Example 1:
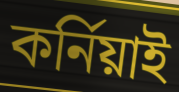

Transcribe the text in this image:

কর্নিয়াই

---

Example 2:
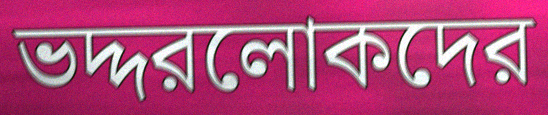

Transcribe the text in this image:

ভদ্দরলোকদের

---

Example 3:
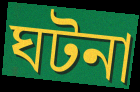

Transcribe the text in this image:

ঘটনা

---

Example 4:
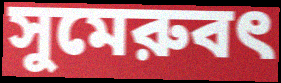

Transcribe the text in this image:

সুমেরুবৎ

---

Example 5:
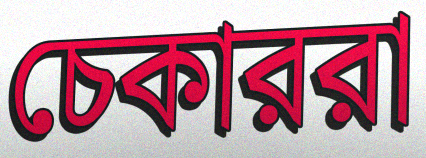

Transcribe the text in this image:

চেকাররা